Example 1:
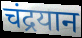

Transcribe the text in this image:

चंद्रयान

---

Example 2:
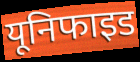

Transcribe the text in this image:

यूनिफाइड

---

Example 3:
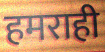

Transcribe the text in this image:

हमराही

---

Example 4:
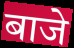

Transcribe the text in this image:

बाजे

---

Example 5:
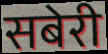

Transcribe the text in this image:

सबेरी